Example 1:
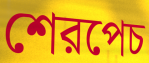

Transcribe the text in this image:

শেরপেচ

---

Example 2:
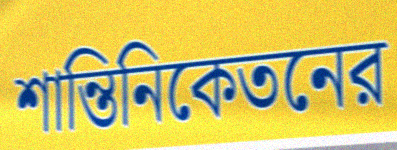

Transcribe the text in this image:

শান্তিনিকেতনের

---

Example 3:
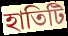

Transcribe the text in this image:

হাতিটি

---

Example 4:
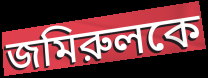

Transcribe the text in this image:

জমিরুলকে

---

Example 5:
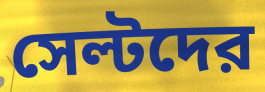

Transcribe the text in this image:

সেল্টদের